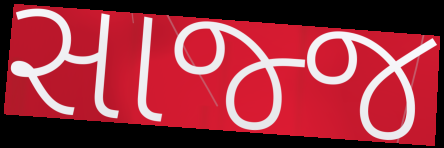
સાજ્જ